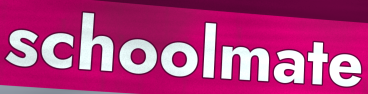
schoolmate